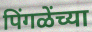
पिंगळेंच्या